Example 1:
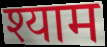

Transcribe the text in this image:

श्‍याम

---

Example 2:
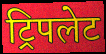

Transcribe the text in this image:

ट्रिपलेट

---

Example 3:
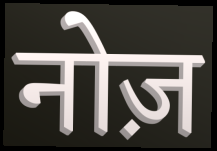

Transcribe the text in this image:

नोज़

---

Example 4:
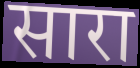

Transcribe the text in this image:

सारा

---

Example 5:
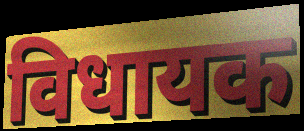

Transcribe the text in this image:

विधायक